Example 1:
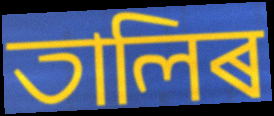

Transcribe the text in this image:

তালিৰ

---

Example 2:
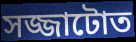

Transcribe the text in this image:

সজ্জাটোত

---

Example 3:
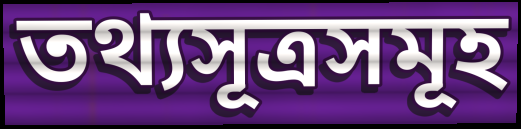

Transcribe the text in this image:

তথ্যসূত্ৰসমূহ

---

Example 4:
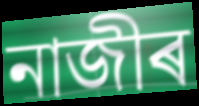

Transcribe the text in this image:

নাজীৰ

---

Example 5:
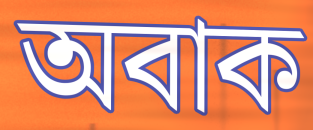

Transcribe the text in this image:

অবাক